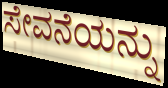
ಸೇವನೆಯನ್ನು